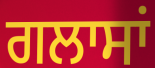
ਗਲਾਸਾਂ